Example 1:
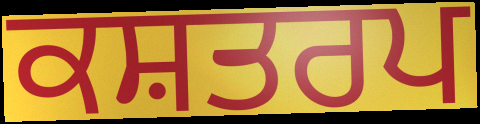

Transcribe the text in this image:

ਕਸ਼ਤਰਪ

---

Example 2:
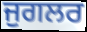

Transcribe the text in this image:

ਜੁਗਲਰ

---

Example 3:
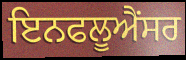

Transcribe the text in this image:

ਇਨਫਲੂਐਂਸਰ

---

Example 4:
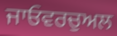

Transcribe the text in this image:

ਜਾਓਵਰਚੁਅਲ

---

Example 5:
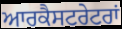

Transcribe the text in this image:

ਆਰਕੈਸਟਰੇਟਰਾਂ